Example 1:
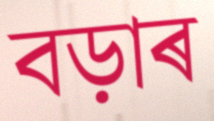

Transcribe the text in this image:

বড়াৰ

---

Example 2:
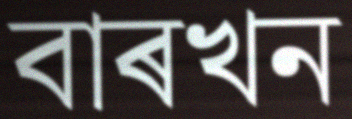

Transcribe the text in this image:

বাৰখন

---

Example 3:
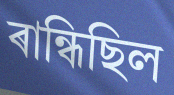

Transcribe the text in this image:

ৰান্ধিছিল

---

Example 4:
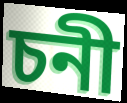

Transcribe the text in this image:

চনী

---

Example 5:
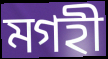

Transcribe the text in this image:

মগহী